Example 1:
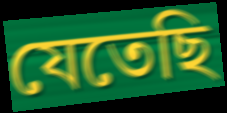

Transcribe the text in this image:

যেতেছি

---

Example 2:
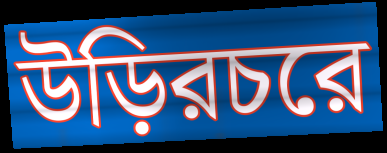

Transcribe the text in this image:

উড়িরচরে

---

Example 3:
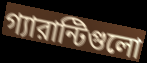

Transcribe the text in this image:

গ্যারান্টিগুলো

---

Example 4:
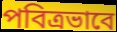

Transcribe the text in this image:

পবিত্রভাবে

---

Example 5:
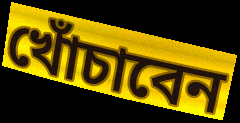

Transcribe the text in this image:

খোঁচাবেন